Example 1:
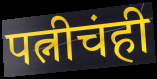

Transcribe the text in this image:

पत्नीचंही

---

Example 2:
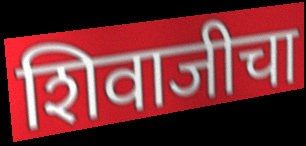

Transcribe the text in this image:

शिवाजीचा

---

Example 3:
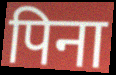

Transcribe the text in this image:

पिना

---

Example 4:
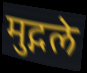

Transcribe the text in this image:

मुद्गले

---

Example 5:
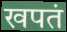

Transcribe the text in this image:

खपतं